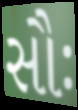
સૌઃ